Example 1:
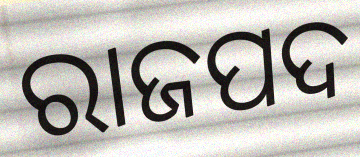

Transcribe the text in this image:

ରାଜପଦ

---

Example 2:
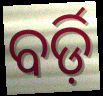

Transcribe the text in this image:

ବର୍ଡ଼ି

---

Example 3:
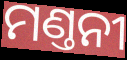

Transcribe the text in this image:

ମଣ୍ତନୀ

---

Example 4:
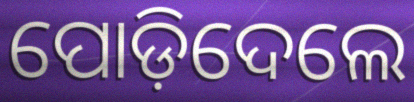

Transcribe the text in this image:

ପୋଡ଼ିଦେଲେ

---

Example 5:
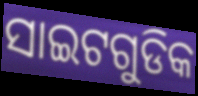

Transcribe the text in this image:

ସାଇଟଗୁଡିକ